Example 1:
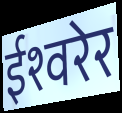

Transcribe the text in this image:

ईश्वरेर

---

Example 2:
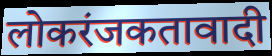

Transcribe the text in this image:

लोकरंजकतावादी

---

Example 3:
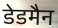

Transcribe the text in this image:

डेडमैन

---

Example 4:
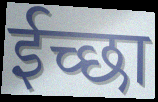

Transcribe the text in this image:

ईच्छा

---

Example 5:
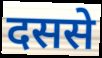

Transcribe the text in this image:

दससे